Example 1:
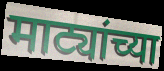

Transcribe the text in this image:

माट्यांच्या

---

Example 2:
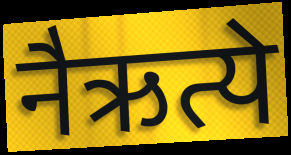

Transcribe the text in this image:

नैऋत्ये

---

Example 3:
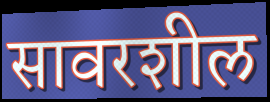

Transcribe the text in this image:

सावरशील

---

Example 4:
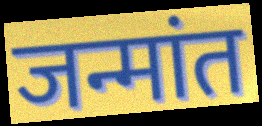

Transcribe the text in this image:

जन्मांत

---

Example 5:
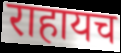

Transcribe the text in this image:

राहायच